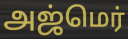
அஜ்மெர்